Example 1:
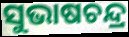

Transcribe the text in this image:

ସୁଭାଷଚନ୍ଦ୍ର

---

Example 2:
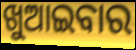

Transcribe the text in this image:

ଖୁଆଇବାର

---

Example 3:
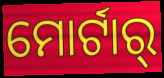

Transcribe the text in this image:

ମୋର୍ଟାର୍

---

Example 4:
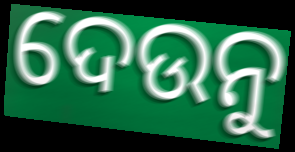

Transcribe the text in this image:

ଦେଉନୁ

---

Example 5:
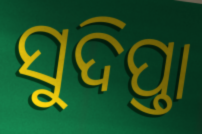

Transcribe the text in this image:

ସୁଦିପ୍ତା